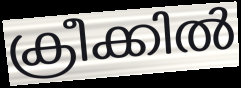
ക്രീക്കിൽ